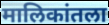
मालिकांतला